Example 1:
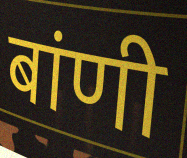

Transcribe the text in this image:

बांणी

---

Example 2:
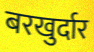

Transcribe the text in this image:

बरखुर्दार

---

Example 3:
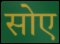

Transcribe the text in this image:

सोए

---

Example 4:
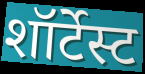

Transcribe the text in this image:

शॉर्टेस्ट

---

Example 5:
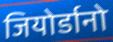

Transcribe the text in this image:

जियोर्डानो